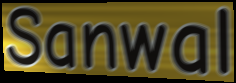
Sanwal